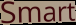
Smart